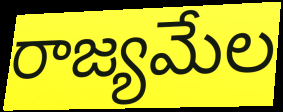
రాజ్యమేల